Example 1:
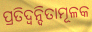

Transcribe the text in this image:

ପ୍ରତିଦ୍ୱନ୍ଦିତାମୂଳକ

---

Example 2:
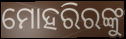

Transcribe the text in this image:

ମୋହରିରଙ୍କୁ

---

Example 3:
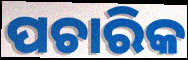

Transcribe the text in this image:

ପଚାରିକ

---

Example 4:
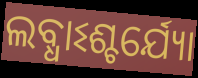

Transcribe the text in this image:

ଲବ୍ଧାଽଶ୍ଚର୍ଯ୍ୟୋ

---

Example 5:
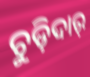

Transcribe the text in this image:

ଚୁଡ଼ିଦାର୍